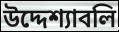
উদ্দেশ্যাবলি